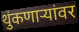
थुंकणाऱ्यांवर